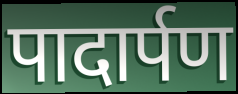
पादार्पण